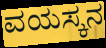
ವಯಸ್ಕನ